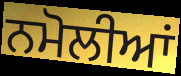
ਨਮੋਲੀਆਂ